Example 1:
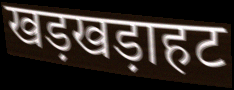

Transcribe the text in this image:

खड़खड़ाहट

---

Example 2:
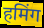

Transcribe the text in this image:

हमिंग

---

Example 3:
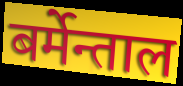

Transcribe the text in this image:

बर्मेन्ताल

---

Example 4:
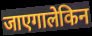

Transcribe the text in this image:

जाएगालेकिन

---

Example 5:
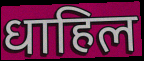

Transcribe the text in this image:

धाहिल